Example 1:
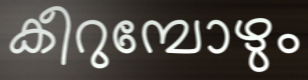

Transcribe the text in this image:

കീറുമ്പോഴും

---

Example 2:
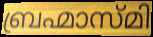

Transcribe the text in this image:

ബ്രഹ്മാസ്മി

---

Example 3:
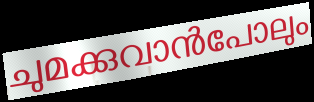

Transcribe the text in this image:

ചുമക്കുവാൻപോലും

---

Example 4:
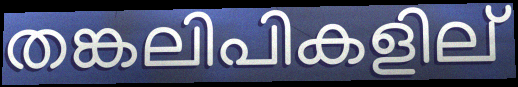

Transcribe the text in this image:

തങ്കലിപികളില്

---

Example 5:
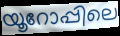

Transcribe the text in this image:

യൂറോപ്പിലെ